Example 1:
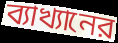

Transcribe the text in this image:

ব্যাখ্যানের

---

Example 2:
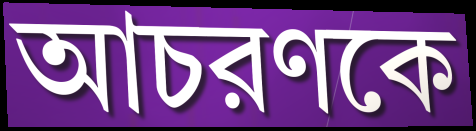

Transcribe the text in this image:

আচরণকে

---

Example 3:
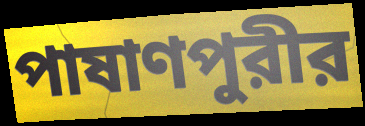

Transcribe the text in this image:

পাষাণপুরীর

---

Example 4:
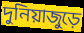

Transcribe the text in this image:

দুনিয়াজুড়ে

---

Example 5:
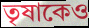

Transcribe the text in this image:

তৃষাকেও